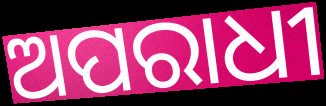
ଅପରାଧୀ